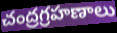
చంద్రగ్రహణాలు